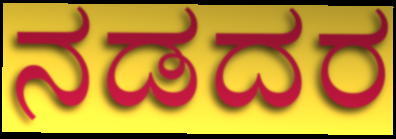
ನಡದರ